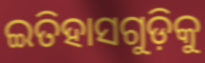
ଇତିହାସଗୁଡ଼ିକୁ